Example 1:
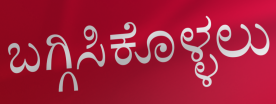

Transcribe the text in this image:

ಬಗ್ಗಿಸಿಕೊಳ್ಳಲು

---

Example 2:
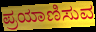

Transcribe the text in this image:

ಪ್ರಯಾಣಿಸುವ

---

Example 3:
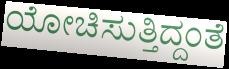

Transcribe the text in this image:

ಯೋಚಿಸುತ್ತಿದ್ದಂತೆ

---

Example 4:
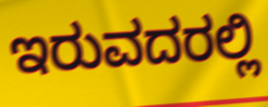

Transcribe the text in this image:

ಇರುವದರಲ್ಲಿ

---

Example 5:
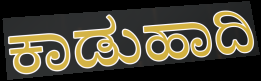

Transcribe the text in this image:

ಕಾಡುಹಾದಿ